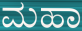
ಮಹಾ